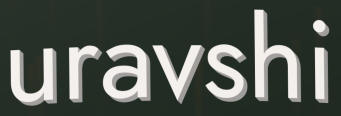
uravshi